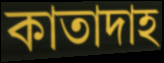
কাতাদাহ